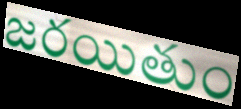
జరయితుం